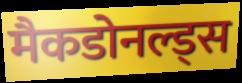
मैकडोनल्ड्स